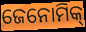
ଜେନୋମିକ୍